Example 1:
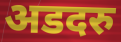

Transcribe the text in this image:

अडदरु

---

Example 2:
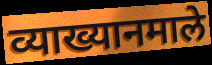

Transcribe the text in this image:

व्याख्यानमाले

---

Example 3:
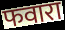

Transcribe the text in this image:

फवारा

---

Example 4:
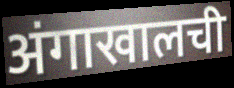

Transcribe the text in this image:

अंगाखालची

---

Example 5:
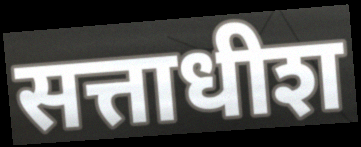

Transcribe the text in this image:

सत्ताधीश